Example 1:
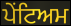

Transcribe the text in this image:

ਪੇਂਟਿਅਮ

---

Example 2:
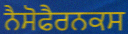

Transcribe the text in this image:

ਨੈਸੋਫੈਰਨਕਸ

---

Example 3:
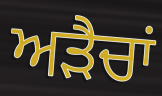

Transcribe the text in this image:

ਅੜੈਚਾਂ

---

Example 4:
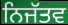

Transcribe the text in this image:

ਨਿਜੱਤਵ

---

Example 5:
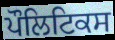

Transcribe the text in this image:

ਪੌਲਿਟਿਕਸ